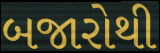
બજારોથી